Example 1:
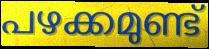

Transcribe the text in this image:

പഴക്കമുണ്ട്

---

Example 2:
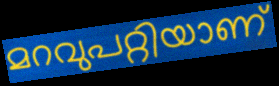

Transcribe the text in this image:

മറവുപറ്റിയാണ്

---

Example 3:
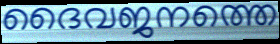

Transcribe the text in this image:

ദൈവജനത്തെ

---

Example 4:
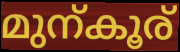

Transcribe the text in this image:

മുന്കൂര്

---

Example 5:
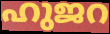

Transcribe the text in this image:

ഹുജറ